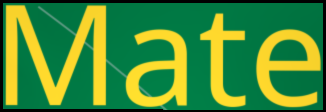
Mate